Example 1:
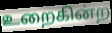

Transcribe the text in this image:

உறைகின்ற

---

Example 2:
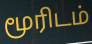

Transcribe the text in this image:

மூரிடம்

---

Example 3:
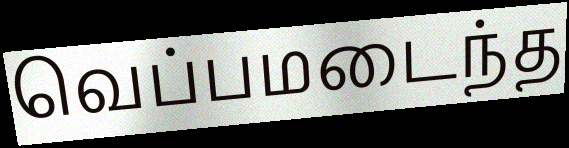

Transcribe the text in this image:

வெப்பமடைந்த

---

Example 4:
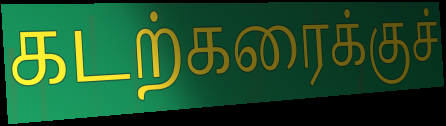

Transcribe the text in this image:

கடற்கரைக்குச்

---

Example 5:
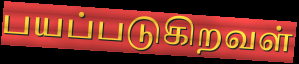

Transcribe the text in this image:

பயப்படுகிறவள்